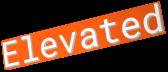
Elevated